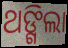
ଥଙ୍ଗିଲା